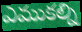
ఎముకల్ని